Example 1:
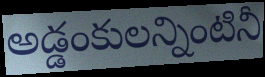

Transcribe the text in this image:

అడ్డంకులన్నింటినీ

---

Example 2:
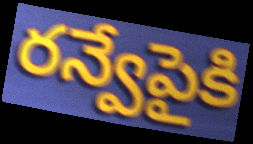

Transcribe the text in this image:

రన్వేపైకి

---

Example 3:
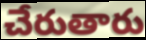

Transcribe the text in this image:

చేరుతారు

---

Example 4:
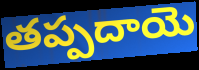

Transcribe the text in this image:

తప్పదాయె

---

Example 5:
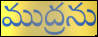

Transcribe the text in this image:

ముద్రను